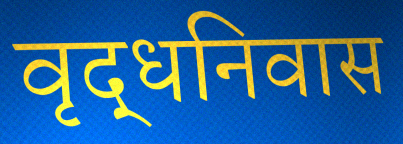
वृद्धनिवास